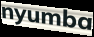
nyumba